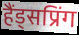
हैंड्सप्रिंग